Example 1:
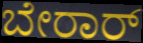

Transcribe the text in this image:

ಬೇರಾರ್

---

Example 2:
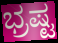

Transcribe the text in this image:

ಭ್ರಷ್ಟ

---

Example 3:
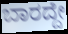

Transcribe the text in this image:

ಬಾರದ್ದೇ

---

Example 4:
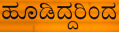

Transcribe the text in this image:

ಹೂಡಿದ್ದರಿಂದ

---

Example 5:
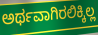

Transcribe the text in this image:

ಅರ್ಥವಾಗಿರಲಿಕ್ಕಿಲ್ಲ